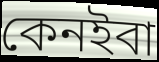
কেনইবা